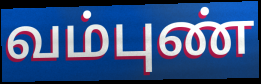
வம்புண்